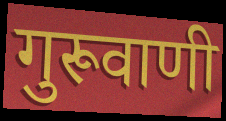
गुरूवाणी